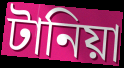
টানিয়া